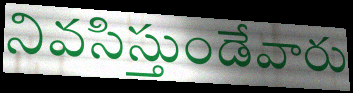
నివసిస్తుండేవారు